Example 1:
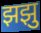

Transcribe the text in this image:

झझु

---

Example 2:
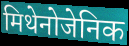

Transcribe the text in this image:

मिथेनोजेनिक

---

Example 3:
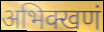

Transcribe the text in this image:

अभिक्खणं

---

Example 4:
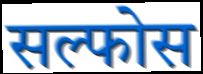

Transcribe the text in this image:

सल्फोस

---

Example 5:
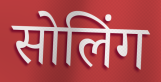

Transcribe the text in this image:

सोलिंग